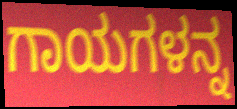
ಗಾಯಗಳನ್ನ